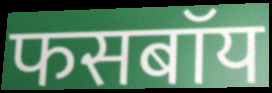
फसबॉय